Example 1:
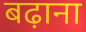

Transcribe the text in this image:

बढ़ाना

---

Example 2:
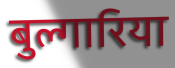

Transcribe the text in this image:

बुल्गारिया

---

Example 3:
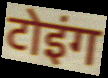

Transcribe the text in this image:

टोइंग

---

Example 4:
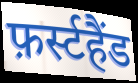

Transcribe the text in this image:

फ़र्स्टहैंड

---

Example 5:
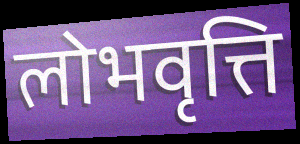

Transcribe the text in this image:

लोभवृत्ति